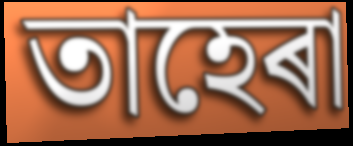
তাহেৰা